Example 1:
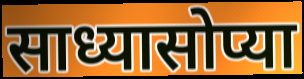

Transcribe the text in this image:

साध्यासोप्या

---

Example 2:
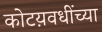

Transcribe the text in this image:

कोटय़वधींच्या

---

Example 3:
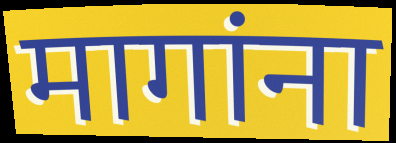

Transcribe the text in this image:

मागांना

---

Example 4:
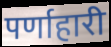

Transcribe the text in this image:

पर्णाहारी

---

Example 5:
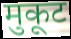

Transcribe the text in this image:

मुकूट